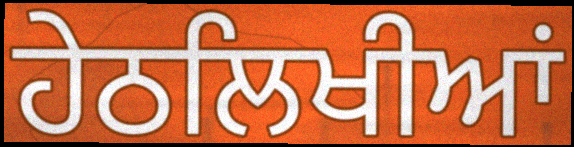
ਹੇਠਲਿਖੀਆਂ